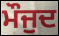
ਮੌਜੁਦ